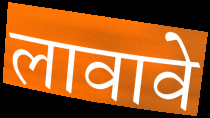
लावावे